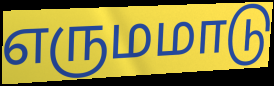
எருமமாடு